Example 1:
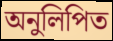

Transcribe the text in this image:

অনুলিপিত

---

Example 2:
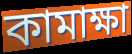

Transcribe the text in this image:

কামাক্ষা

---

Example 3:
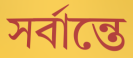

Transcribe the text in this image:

সর্বান্তে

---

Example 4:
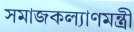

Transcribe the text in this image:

সমাজকল্যাণমন্ত্রী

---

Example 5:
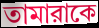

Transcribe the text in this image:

তামারাকে